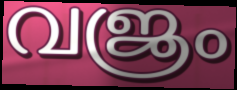
വജ്രം